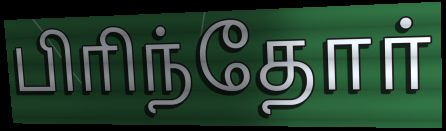
பிரிந்தோர்